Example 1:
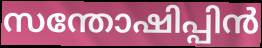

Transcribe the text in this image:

സന്തോഷിപ്പിൻ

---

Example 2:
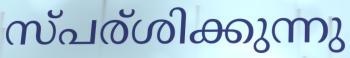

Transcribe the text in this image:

സ്പര്ശിക്കുന്നു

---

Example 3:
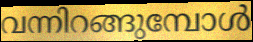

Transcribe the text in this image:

വന്നിറങ്ങുമ്പോൾ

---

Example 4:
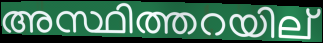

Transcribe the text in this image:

അസ്ഥിത്തറയില്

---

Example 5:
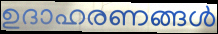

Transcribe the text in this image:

ഉദാഹരണങ്ങൾ